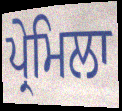
ਪ੍ਰੇਮਿਲਾ